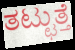
ತಟ್ಟುತ್ತೆ